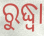
ରୁଦ୍ଧ୍ୱା